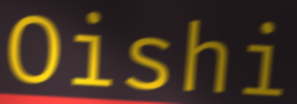
Oishi